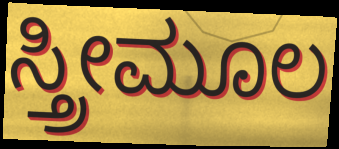
ಸ್ತ್ರೀಮೂಲ